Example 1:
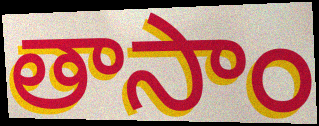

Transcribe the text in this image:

తాసాం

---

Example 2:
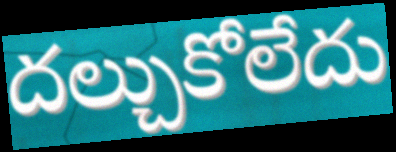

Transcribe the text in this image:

దల్చుకోలేదు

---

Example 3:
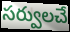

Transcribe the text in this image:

సర్వులచే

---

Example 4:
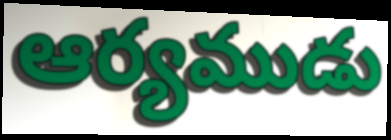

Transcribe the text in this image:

ఆర్యముడు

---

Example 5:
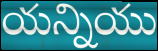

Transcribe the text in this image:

యన్నియు